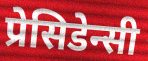
प्रेसिडेन्सी